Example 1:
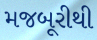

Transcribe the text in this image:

મજબૂરીથી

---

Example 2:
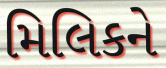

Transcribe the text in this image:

મિલિકને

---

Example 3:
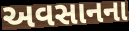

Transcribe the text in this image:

અવસાનના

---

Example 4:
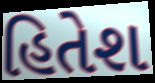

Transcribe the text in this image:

હિતેશ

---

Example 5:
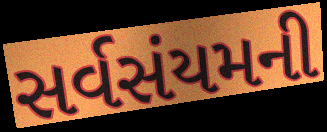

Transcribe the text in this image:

સર્વસંયમની